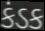
કંડક